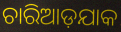
ଚାରିଆଡ଼ଯାକ